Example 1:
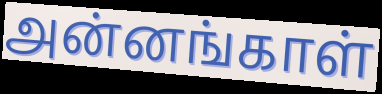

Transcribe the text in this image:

அன்னங்காள்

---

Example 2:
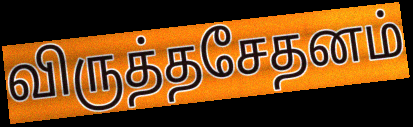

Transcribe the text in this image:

விருத்தசேதனம்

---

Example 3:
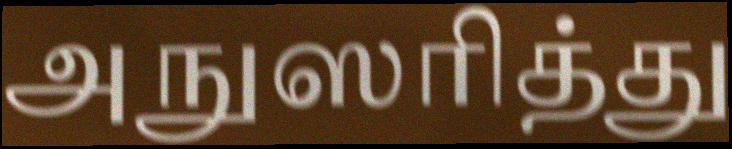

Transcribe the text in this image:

அநுஸரித்து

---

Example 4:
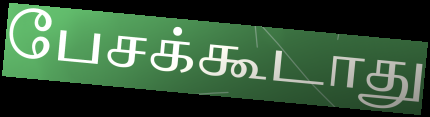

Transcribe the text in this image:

பேசக்கூடாது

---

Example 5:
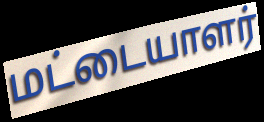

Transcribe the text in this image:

மட்டையாளர்